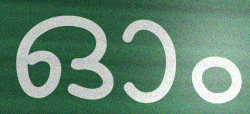
ഓം